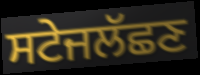
ਸਟੇਜਲੱਛਣ